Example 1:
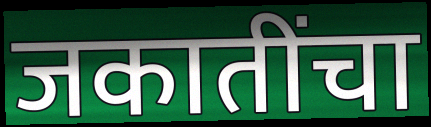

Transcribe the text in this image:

जकातींचा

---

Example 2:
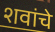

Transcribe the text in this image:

शवांचे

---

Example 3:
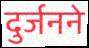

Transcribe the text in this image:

दुर्जनने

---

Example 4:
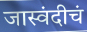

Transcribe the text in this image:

जास्वंदीचं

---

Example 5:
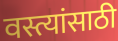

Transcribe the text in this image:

वस्त्यांसाठी